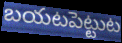
బయటపెట్టుట